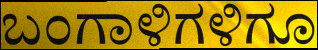
ಬಂಗಾಳಿಗಳಿಗೂ